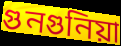
গুনগুনিয়া